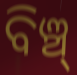
ବିଞ୍ଚ୍